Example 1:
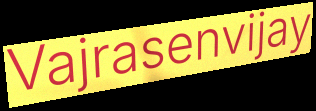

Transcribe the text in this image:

Vajrasenvijay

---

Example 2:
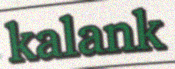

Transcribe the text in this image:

kalank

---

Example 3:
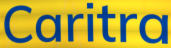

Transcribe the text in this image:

Caritra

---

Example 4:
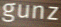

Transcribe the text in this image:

gunz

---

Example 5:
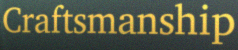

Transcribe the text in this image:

Craftsmanship